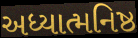
અધ્યાત્મનિષ્ઠ